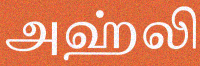
அஹ்லி